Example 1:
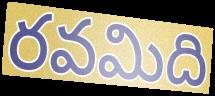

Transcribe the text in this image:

రవమిది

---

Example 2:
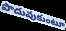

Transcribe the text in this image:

పొదువుకుంటూ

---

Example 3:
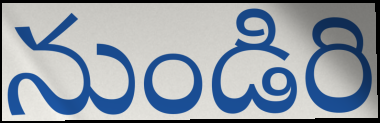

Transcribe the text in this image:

నుండిరి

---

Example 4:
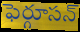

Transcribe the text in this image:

ఫెర్గూసన్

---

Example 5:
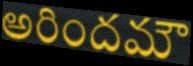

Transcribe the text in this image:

అరిందమౌ